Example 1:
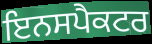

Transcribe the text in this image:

ਇਨਸਪੈਕਟਰ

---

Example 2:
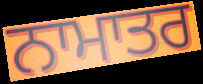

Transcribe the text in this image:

ਨਾਮਾਤਰ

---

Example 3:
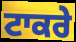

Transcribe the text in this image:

ਟਾਕਰੇ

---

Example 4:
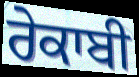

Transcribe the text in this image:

ਰੇਕਾਬੀ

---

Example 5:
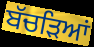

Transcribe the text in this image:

ਬੱਚੜਿਆਂ